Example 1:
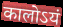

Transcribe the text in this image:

कालोऽयं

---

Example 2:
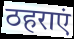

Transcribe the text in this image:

ठहराएं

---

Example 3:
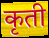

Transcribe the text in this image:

कृती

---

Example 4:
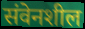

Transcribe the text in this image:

संवेनशील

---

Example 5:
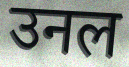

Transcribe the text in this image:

उनल